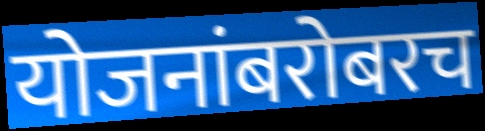
योजनांबरोबरच